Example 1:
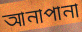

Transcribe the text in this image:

আনাপানা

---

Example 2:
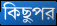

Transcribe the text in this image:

কিছুপর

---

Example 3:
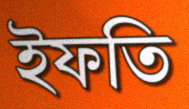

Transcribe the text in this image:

ইফতি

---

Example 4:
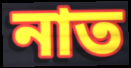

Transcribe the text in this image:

নাত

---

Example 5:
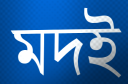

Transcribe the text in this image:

মদই